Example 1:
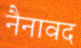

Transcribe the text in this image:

नैनावद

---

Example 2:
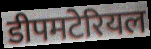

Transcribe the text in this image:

डीपमटेरियल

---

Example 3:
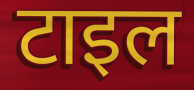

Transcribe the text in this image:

टाइल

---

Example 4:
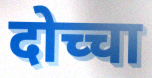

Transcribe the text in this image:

दोच्चा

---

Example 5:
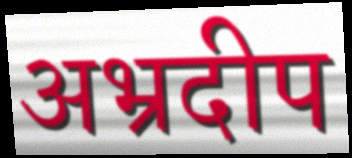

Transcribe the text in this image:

अभ्रदीप